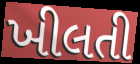
ખીલતી